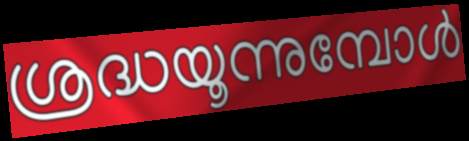
ശ്രദ്ധയൂന്നുമ്പോൾ